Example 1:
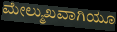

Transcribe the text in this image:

ಮೇಲ್ಮುಖವಾಗಿಯೂ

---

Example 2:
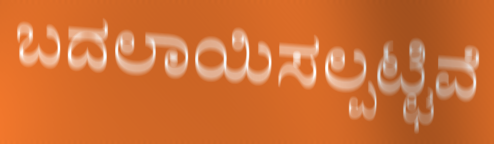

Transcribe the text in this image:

ಬದಲಾಯಿಸಲ್ಪಟ್ಟಿವೆ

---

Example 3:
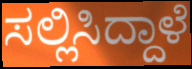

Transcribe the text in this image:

ಸಲ್ಲಿಸಿದ್ದಾಳೆ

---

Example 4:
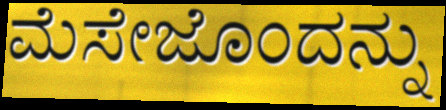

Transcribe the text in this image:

ಮೆಸೇಜೊಂದನ್ನು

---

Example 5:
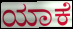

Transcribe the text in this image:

ಯಾಕೆ